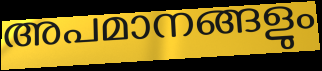
അപമാനങ്ങളും